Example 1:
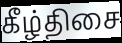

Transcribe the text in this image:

கீழ்திசை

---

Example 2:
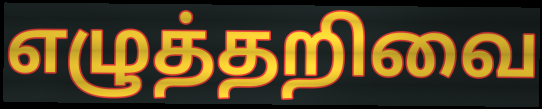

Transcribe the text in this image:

எழுத்தறிவை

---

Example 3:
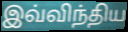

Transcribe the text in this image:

இவ்விந்திய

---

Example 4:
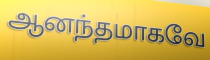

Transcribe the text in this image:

ஆனந்தமாகவே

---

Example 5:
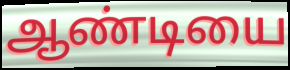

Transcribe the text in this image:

ஆண்டியை